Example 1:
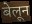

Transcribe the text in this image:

बेलून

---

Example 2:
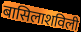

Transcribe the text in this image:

बासिलाशविली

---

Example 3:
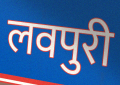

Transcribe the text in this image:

लवपुरी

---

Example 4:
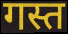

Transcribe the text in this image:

गस्त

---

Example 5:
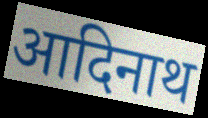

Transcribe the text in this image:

आदिनाथ